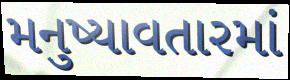
મનુષ્યાવતારમાં